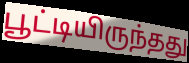
பூட்டியிருந்தது